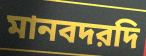
মানবদরদি